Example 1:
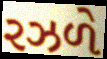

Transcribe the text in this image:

રઝળે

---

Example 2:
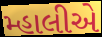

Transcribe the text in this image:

મ્હાલીએ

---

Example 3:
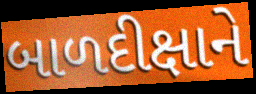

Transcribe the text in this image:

બાળદીક્ષાને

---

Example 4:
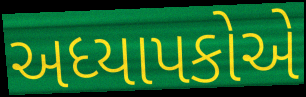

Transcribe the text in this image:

અધ્યાપકોએ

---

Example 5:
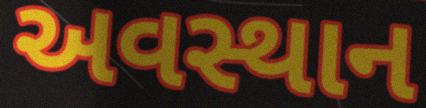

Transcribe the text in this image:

અવસ્થાન